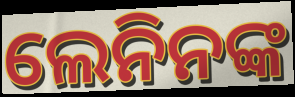
ଲେନିନଙ୍କ